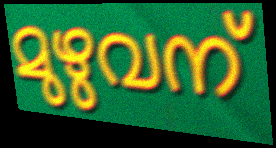
മുഴുവന്